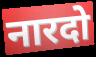
नारदो